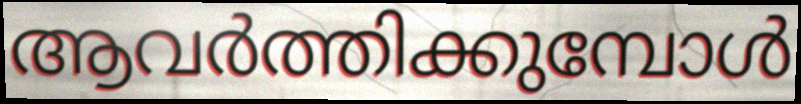
ആവർത്തിക്കുമ്പോൾ